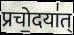
प्रचो॒दया॑त्